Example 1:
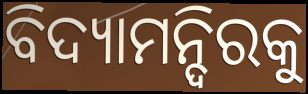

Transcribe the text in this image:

ବିଦ୍ୟାମନ୍ଦିରକୁ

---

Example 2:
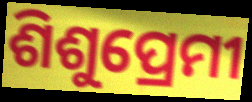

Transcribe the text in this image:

ଶିଶୁପ୍ରେମୀ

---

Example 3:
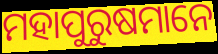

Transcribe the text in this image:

ମହାପୁରୁଷମାନେ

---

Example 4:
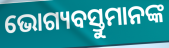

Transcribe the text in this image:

ଭୋଗ୍ୟବସ୍ତୁମାନଙ୍କ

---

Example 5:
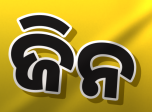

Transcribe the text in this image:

ଜିନ